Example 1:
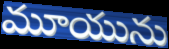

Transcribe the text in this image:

మూయును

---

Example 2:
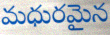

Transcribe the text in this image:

మధురమైన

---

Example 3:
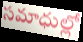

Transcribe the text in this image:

సమాధుల్లో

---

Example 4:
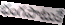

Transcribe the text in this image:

భంగపాటుకే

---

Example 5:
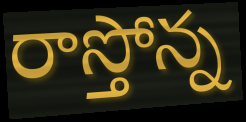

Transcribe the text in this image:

రాస్తోన్న